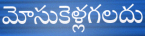
మోసుకెళ్లగలదు